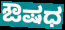
ಔಷಧ